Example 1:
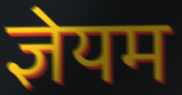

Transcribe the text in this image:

ज्ञेयम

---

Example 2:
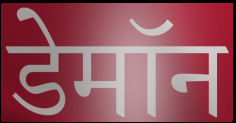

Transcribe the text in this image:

डेमॉन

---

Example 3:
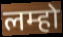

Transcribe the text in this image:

लम्हो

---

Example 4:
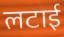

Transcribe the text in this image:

लटाई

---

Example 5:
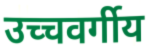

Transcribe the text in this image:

उच्चवर्गीय